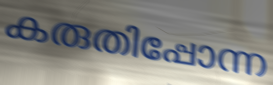
കരുതിപ്പോന്ന